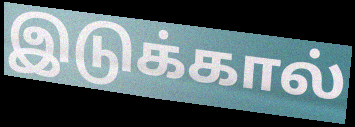
இடுக்கால்